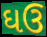
ઘઉ